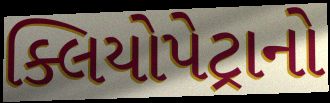
ક્લિયોપેટ્રાનો